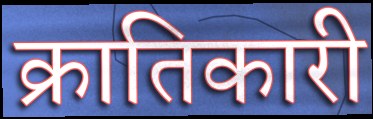
क्रातिकारी